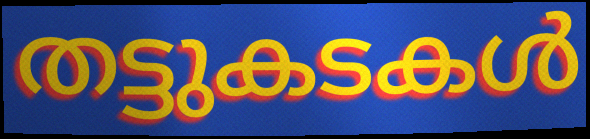
തട്ടുകടകൾ